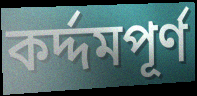
কর্দ্দমপূর্ণ